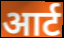
आर्ट